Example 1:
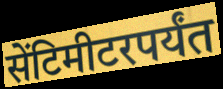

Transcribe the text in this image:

सेंटिमीटरपर्यंत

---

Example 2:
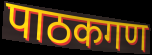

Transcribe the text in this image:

पाठकगण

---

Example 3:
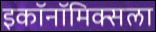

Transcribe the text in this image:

इकॉनॉमिक्सला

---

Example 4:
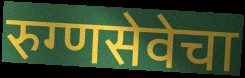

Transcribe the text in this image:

रुग्णसेवेचा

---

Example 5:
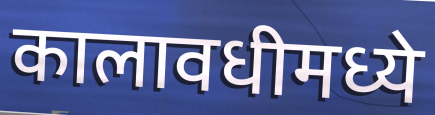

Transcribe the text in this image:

कालावधीमध्ये